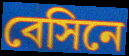
বেসিনে